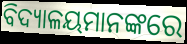
ବିଦ୍ୟାଳୟମାନଙ୍କରେ